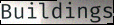
Buildings